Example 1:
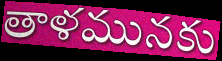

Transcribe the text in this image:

తాళమునకు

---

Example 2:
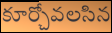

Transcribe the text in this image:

కూర్చోవలసిన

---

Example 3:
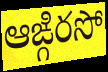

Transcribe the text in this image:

ఆఙ్గిరసో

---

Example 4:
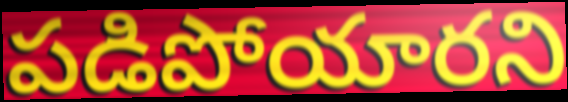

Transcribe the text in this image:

పడిపోయారని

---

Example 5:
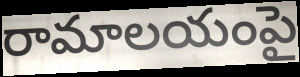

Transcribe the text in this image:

రామాలయంపై